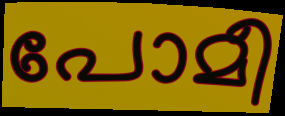
പോമീ